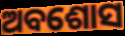
ଅବଶୋସ